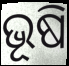
ଭୂଷି